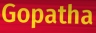
Gopatha